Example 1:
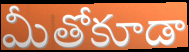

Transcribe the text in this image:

మీతోకూడా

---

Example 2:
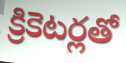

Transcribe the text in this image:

క్రికెటర్లతో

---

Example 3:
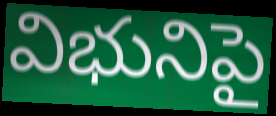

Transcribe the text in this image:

విభునిపై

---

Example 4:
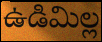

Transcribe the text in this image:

ఉడిమిల్ల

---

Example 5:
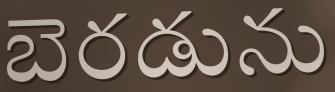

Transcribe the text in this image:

బెరడును